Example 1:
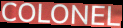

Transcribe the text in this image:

COLONEL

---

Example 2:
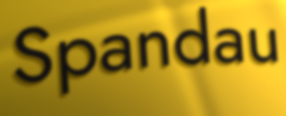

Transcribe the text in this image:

Spandau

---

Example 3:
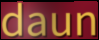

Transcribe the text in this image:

daun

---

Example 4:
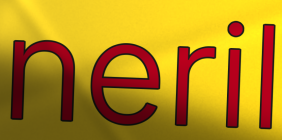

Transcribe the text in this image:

neril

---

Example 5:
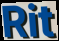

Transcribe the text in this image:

Rit